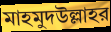
মাহমুদউল্লাহর